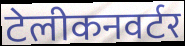
टेलीकनवर्टर